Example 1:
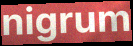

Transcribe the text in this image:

nigrum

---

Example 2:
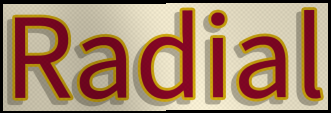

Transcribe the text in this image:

Radial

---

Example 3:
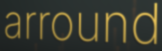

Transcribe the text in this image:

arround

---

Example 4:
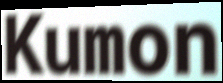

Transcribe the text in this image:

Kumon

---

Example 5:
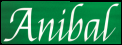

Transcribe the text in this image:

Anibal